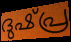
ദുഷ്‌പ്ര